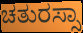
ಚತುರಸ್ಸಾ